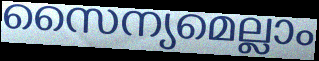
സൈന്യമെല്ലാം